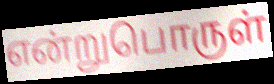
என்றுபொருள்